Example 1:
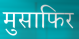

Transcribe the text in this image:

मुसाफिर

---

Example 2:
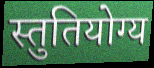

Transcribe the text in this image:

स्तुतियोग्य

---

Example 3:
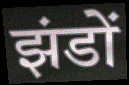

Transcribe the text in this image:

झंडों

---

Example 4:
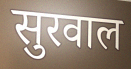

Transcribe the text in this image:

सुरवाल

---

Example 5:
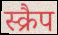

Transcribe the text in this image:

स्क्रैप